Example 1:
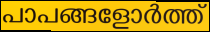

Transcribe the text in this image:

പാപങ്ങളോർത്ത്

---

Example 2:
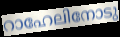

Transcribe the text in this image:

റാഹേലിനോടു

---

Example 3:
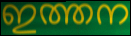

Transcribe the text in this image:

ഇത്തന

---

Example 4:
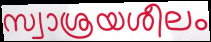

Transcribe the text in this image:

സ്വാശ്രയശീലം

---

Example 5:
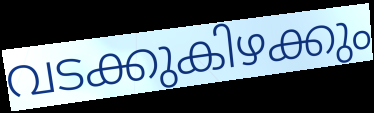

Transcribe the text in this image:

വടക്കുകിഴക്കും